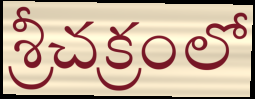
శ్రీచక్రంలో